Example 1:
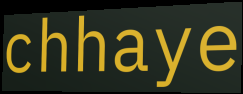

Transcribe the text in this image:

chhaye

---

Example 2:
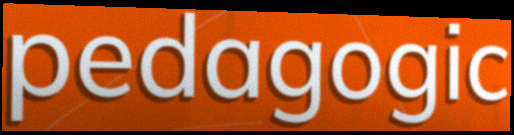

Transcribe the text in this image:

pedagogic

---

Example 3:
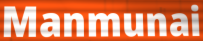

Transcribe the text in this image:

Manmunai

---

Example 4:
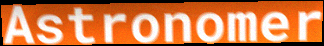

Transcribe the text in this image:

Astronomer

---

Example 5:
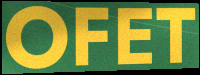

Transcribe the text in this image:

OFET